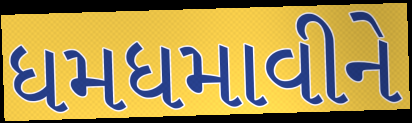
ધમધમાવીને